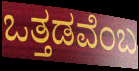
ಒತ್ತಡವೆಂಬ